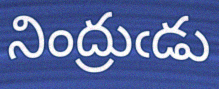
నింద్రుఁడు